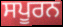
ਸਪੂਰਨ